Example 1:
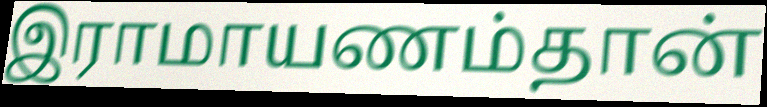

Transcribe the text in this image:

இராமாயணம்தான்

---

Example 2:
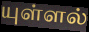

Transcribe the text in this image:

யுள்ளல்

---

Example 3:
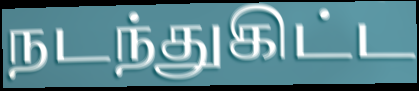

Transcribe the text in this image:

நடந்துகிட்ட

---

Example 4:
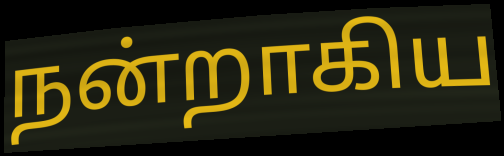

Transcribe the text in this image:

நன்றாகிய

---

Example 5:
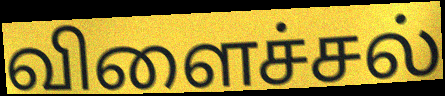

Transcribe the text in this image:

விளைச்சல்